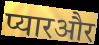
प्यारऔर